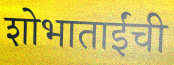
शोभाताईंची